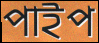
পাইপ